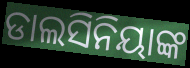
ଡାଲସିନିୟାଙ୍କ